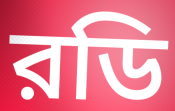
রডি